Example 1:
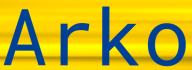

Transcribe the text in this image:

Arko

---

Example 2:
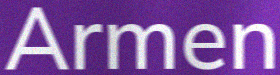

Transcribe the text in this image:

Armen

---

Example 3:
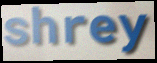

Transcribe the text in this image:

shrey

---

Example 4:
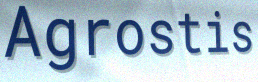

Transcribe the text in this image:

Agrostis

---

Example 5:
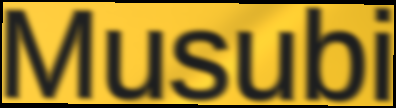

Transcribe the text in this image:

Musubi